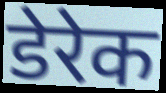
डेरेक